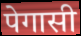
पेगासी